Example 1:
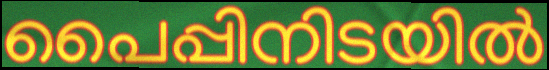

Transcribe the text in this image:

പൈപ്പിനിടയിൽ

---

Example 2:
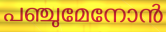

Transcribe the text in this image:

പഞ്ചുമേനോൻ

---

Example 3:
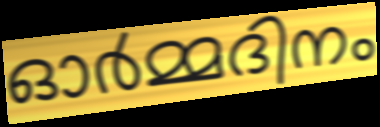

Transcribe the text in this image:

ഓർമ്മദിനം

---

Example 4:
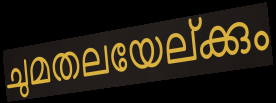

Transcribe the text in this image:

ചുമതലയേല്ക്കും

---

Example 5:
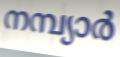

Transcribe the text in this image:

നമ്പ്യാർ